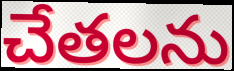
చేతలను